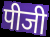
पीजी